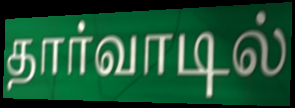
தார்வாடில்